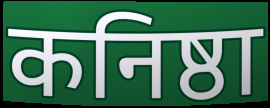
कनिष्ठा